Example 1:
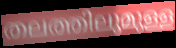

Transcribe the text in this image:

തലത്തിലുമുള്ള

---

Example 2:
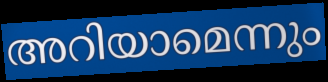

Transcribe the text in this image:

അറിയാമെന്നും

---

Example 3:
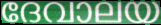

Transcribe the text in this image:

ദേവാലയ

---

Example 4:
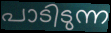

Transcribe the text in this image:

പാടിടുന്ന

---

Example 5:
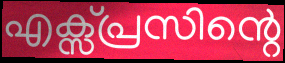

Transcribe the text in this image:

എക്സ്പ്രസിന്റെ